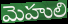
మెహులి